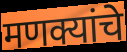
मणक्यांचे